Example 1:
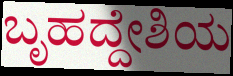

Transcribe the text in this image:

ಬೃಹದ್ದೇಶಿಯ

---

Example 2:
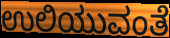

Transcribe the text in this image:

ಉಲಿಯುವಂತೆ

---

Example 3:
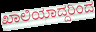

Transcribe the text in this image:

ಖಾಲಿಯಾದ್ದರಿಂದ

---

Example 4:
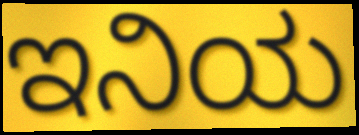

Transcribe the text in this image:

ಇನಿಯ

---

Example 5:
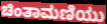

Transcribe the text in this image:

ಚಿಂತಾಮಣಿಯು